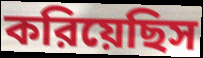
করিয়েছিস